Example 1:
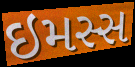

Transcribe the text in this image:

ઇમસ્સ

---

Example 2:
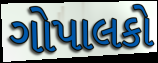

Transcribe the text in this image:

ગોપાલકો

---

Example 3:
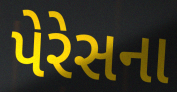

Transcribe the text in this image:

પેરેસના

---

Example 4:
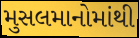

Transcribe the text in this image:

મુસલમાનોમાંથી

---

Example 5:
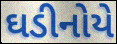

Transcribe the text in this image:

ઘડીનોયે